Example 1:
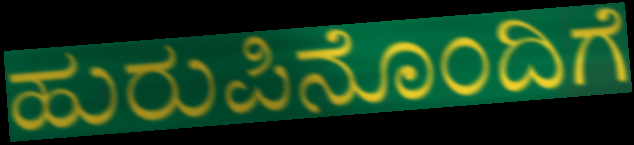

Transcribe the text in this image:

ಹುರುಪಿನೊಂದಿಗೆ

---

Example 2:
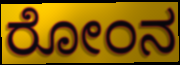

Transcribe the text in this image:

ರೋಂನ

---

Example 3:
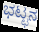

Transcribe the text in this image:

ಭಟ್ಟನ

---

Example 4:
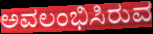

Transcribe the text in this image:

ಅವಲಂಭಿಸಿರುವ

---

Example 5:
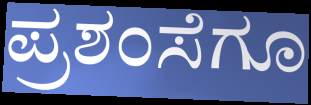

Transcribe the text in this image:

ಪ್ರಶಂಸೆಗೂ